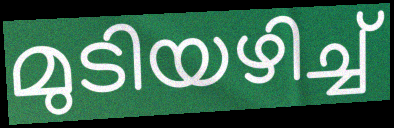
മുടിയഴിച്ച്